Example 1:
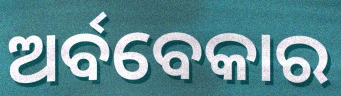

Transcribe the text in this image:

ଅର୍ବବେକାର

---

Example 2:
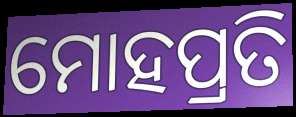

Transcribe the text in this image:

ମୋହପ୍ରତି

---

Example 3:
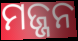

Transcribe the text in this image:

ମଜ୍ଜନ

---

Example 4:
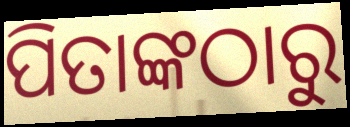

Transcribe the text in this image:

ପିତାଙ୍କଠାରୁ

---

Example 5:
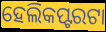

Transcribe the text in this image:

ହେଲିକପ୍ଟରଟା